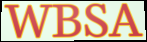
WBSA